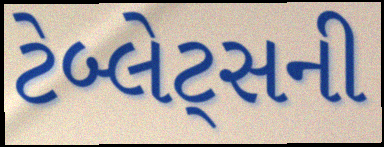
ટેબ્લેટ્સની